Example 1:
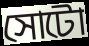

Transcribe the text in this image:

সোটো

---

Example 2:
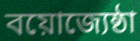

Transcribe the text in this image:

বয়োজ্যেষ্ঠা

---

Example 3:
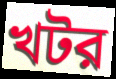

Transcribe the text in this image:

খটর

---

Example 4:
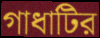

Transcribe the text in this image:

গাধাটির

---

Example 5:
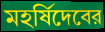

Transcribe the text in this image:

মহর্ষিদেবের